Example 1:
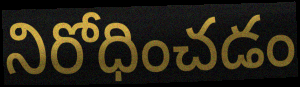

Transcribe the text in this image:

నిరోధించడం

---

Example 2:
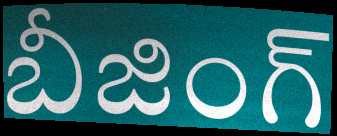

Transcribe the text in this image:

బీజింగ్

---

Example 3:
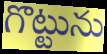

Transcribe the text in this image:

గొట్టును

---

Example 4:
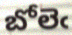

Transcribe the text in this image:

బోలెఁ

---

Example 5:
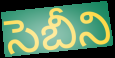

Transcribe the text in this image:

సెబీని